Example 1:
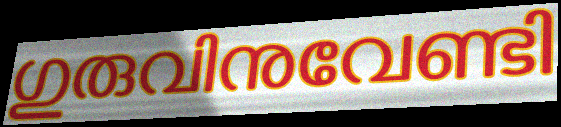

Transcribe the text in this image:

ഗുരുവിനുവേണ്ടി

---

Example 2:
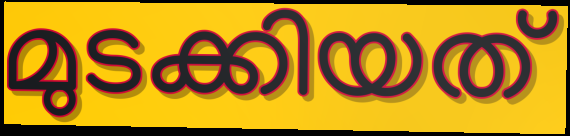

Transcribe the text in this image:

മുടക്കിയത്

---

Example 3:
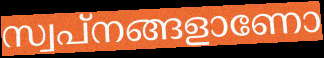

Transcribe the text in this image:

സ്വപ്നങ്ങളാണോ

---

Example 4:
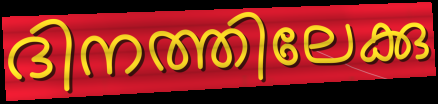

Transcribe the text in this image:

ദിനത്തിലേക്കു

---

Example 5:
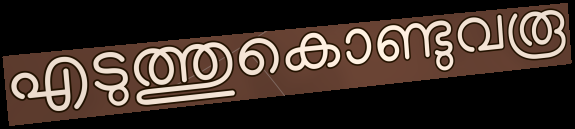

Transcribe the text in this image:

എടുത്തുകൊണ്ടുവരൂ